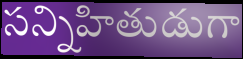
సన్నిహితుడుగా